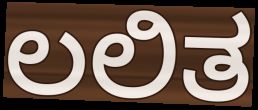
ಲಲಿತ